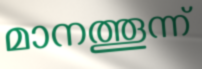
മാനത്തൂന്ന്